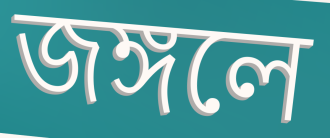
জঙ্গলে